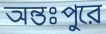
অন্তঃপুরে